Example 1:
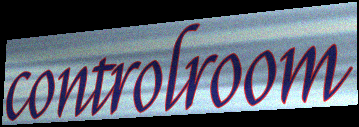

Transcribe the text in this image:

controlroom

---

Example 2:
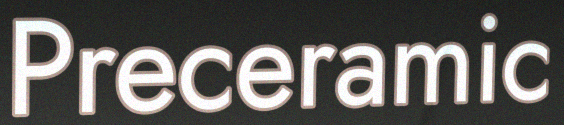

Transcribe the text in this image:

Preceramic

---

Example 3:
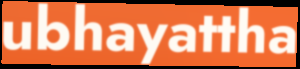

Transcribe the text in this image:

ubhayattha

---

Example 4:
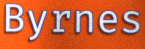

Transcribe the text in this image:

Byrnes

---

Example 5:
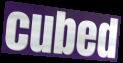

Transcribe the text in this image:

cubed